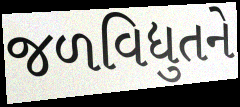
જળવિદ્યુતને